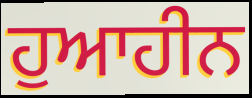
ਹੁਆਹੀਨ